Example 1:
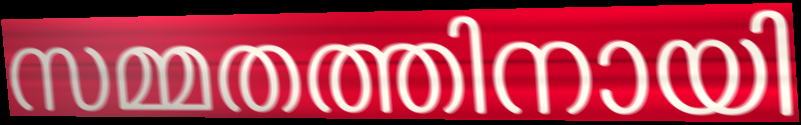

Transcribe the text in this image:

സമ്മതത്തിനായി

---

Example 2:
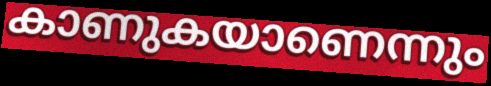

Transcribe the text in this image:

കാണുകയാണെന്നും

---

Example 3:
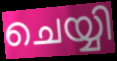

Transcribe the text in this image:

ചെയ്യി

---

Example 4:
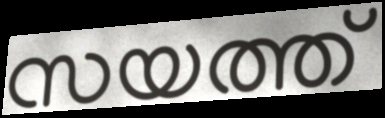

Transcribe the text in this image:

സയത്ത്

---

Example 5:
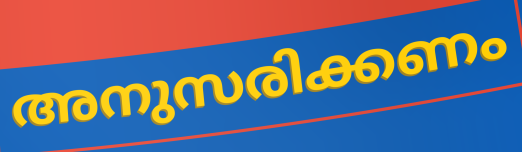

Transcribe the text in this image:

അനുസരിക്കണം